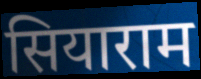
सियाराम